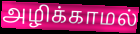
அழிக்காமல்